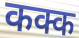
कक्क